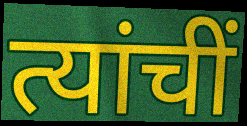
त्यांचीं